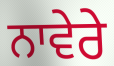
ਨਾਵੇਰੇ